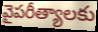
వైపరీత్యాలకు